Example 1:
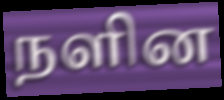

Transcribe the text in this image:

நளின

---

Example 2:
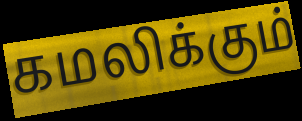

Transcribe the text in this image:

கமலிக்கும்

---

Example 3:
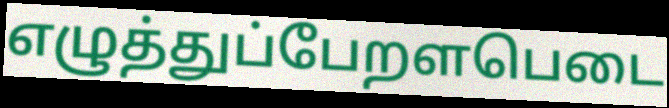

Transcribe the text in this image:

எழுத்துப்பேறளபெடை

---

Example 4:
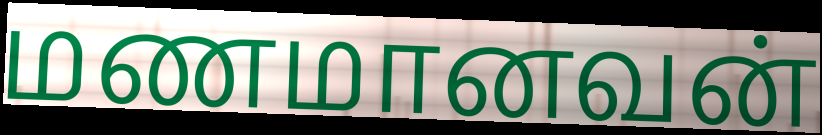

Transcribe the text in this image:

மணமானவன்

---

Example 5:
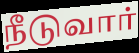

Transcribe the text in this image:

நீடுவார்